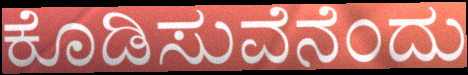
ಕೊಡಿಸುವೆನೆಂದು